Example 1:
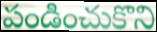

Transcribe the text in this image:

పండించుకొని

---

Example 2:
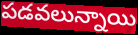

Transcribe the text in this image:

పడవలున్నాయి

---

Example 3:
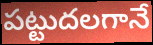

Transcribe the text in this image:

పట్టుదలగానే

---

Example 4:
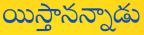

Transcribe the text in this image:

యిస్తానన్నాడు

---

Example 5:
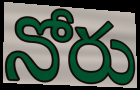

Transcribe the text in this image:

నోరు